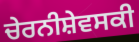
ਚੇਰਨੀਸ਼ੇਵਸਕੀ